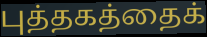
புத்தகத்தைக்